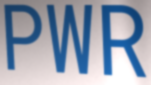
PWR